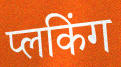
प्लकिंग